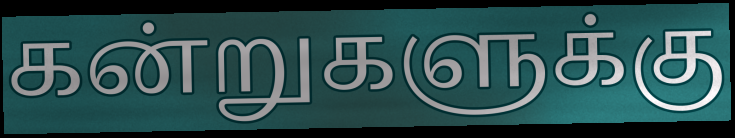
கன்றுகளுக்கு